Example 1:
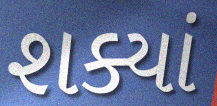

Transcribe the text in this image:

શક્યાં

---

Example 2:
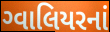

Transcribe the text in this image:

ગ્વાલિયરનાં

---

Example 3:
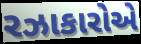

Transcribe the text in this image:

રઝાકારોએ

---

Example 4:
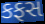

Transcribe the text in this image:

કફસ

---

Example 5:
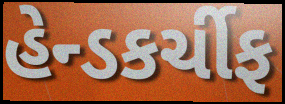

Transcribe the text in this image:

હેન્ડકર્ચીફ